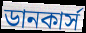
ডানকার্স